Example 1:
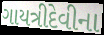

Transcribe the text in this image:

ગાયત્રીદેવીના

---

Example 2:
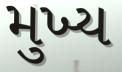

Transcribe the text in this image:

મુખ્ય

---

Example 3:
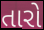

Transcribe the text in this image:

તારો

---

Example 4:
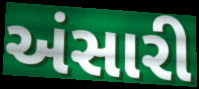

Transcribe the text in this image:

અંસારી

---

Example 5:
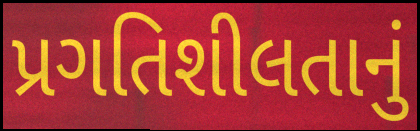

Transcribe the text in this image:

પ્રગતિશીલતાનું